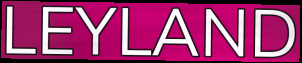
LEYLAND